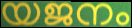
യജനം